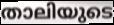
താലിയുടെ